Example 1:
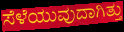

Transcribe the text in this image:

ಸೆಳೆಯುವುದಾಗಿತ್ತು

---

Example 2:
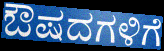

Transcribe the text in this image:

ಔಷದಗಳಿಗೆ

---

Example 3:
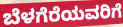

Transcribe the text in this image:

ಬೆಳಗೆರೆಯವರಿಗೆ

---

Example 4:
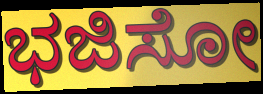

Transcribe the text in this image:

ಭಜಿಸೋ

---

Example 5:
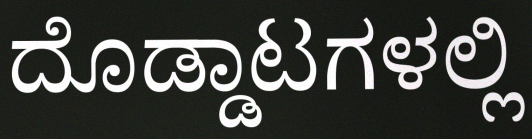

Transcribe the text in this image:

ದೊಡ್ಡಾಟಗಳಲ್ಲಿ